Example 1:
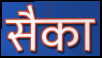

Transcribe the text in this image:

सैका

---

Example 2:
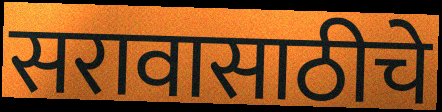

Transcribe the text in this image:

सरावासाठीचे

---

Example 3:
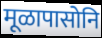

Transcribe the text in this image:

मूळापासोनि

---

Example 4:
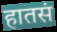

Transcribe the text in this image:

हातसं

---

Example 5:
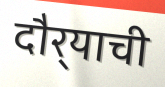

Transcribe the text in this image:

दौर्‍याची